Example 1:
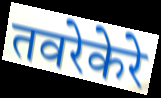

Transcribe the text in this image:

तवरेकेरे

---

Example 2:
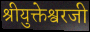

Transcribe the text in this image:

श्रीयुक्तेश्वरजी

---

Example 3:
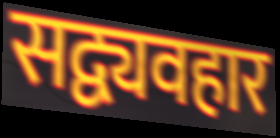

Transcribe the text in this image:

सद्व्यवहार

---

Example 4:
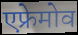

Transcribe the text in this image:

एफ्रेमोव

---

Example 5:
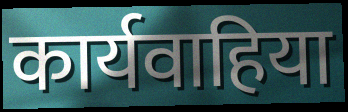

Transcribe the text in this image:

कार्यवाहिया